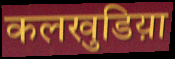
कलखुडिय़ा